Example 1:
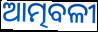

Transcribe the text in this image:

ଆତ୍ମବଳୀ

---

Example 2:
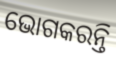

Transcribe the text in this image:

ଭୋଗକରନ୍ତି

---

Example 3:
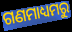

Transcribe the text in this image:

ଗଣମାଧ୍ୟମରୁ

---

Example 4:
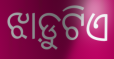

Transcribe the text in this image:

ଝାଡ଼ୁଟିଏ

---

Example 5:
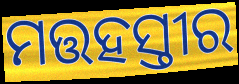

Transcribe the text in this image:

ମତ୍ତହସ୍ତୀର